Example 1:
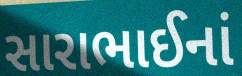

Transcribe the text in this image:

સારાભાઈનાં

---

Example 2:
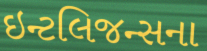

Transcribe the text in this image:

ઇન્ટલિજન્સના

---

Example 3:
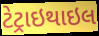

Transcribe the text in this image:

ટેટ્રાઇથાઇલ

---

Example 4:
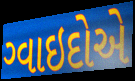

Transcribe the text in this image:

ગ્વાઇદોએ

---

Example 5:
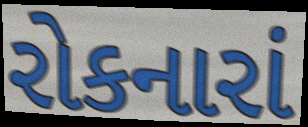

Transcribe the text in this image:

રોકનારાં